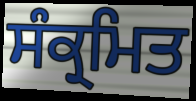
ਸੰਕ੍ਰਮਿਤ